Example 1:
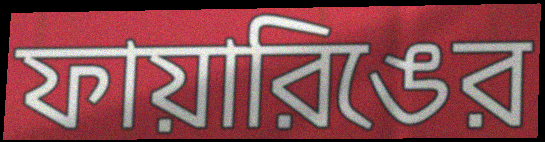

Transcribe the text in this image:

ফায়ারিঙের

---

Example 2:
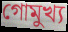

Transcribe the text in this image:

গোমুখ্য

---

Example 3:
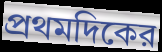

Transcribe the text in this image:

প্রথমদিকের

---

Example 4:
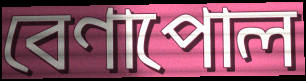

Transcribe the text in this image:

বেণাপোল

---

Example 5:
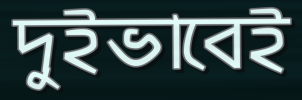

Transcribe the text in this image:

দুইভাবেই